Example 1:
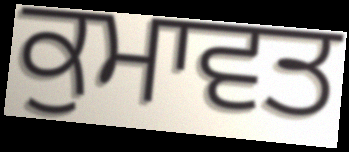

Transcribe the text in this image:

ਕੁਮਾਵਤ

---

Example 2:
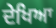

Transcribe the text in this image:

ਦੇਖਿਆ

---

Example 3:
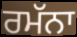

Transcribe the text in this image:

ਰਮੱਨਾ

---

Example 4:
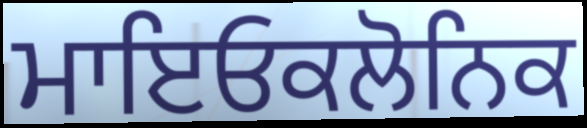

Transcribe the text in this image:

ਮਾਇਓਕਲੋਨਿਕ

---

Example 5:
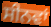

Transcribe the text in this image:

ਸੀਨਵਾਂ